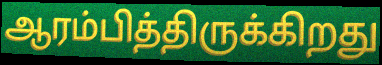
ஆரம்பித்திருக்கிறது